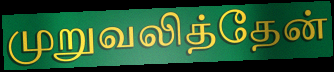
முறுவலித்தேன்